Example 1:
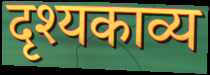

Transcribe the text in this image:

दृश्यकाव्य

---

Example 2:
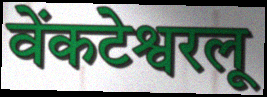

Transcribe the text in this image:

वेंकटेश्वरलू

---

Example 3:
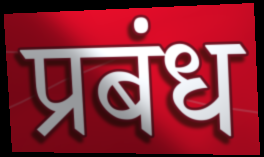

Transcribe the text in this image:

प्रबंध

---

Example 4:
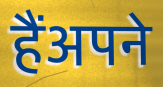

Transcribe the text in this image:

हैंअपने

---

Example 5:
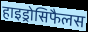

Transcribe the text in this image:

हाइड्रोसिफैलस